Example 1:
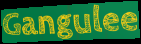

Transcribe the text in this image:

Gangulee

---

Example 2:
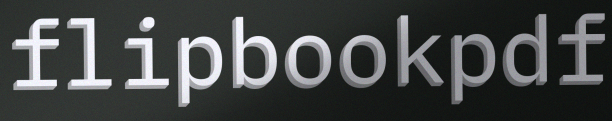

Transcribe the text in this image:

flipbookpdf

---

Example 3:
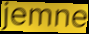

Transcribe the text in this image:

jemne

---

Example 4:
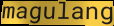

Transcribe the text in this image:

magulang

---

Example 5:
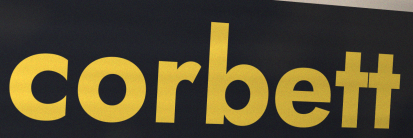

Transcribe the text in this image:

corbett